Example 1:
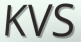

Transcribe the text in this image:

KVS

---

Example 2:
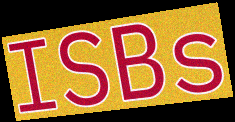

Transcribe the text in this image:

ISBs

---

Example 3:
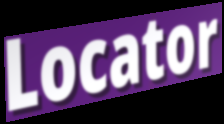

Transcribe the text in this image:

Locator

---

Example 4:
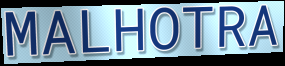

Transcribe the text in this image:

MALHOTRA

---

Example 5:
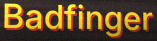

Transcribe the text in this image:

Badfinger